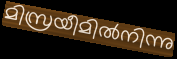
മിസ്രയീമിൽനിന്നു